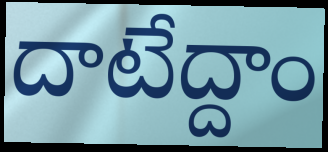
దాటేద్దాం